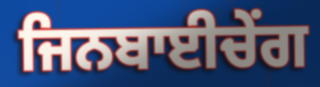
ਜਿਨਬਾਈਚੇਂਗ